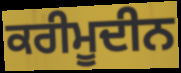
ਕਰੀਮੂਦੀਨ